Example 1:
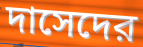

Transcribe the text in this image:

দাসেদের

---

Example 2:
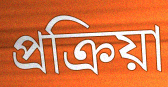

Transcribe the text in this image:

প্রক্রিয়া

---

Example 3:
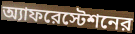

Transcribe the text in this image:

অ্যাফরেস্টেশনের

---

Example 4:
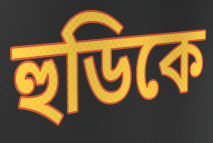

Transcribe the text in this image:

হুডিকে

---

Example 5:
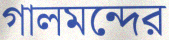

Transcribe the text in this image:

গালমন্দের